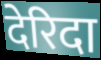
देरिदा